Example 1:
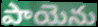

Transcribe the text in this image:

పాయెను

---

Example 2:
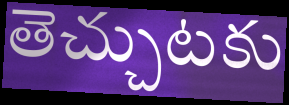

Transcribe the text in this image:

తెచ్చుటకు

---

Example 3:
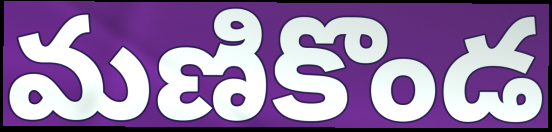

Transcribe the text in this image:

మణికొండ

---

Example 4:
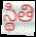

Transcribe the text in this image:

స్థితి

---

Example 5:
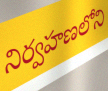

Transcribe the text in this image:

నిర్వహణలోని